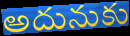
అదునుకు